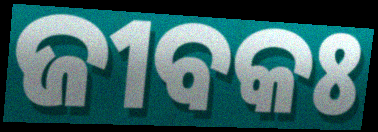
ଜୀବକଃ